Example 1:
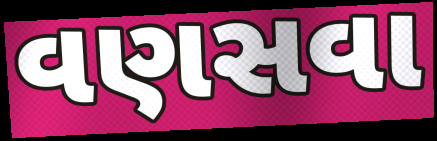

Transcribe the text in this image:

વણસવા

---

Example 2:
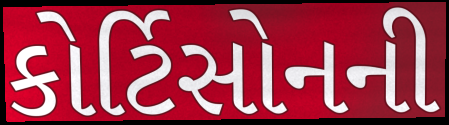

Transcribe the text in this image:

કોર્ટિસોનની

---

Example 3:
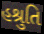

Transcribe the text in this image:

હશ્રુતિ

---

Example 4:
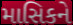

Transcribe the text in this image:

માસિકને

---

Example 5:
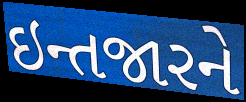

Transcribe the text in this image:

ઇન્તજારને